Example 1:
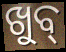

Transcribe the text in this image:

ଖୁବ୍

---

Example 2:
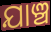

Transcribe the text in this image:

ଯାଞ୍ଚ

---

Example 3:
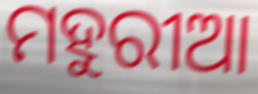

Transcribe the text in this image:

ମହୁରୀଆ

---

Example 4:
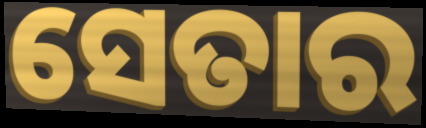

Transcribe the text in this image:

ସେତାର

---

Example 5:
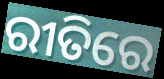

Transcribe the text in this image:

ରୀତିରେ